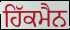
ਹਿੱਕਮੈਨ